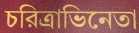
চরিত্রাভিনেতা